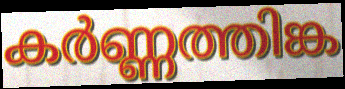
കർണ്ണത്തിങ്ക